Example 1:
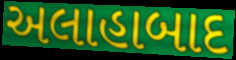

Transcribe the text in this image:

અલાહાબાદ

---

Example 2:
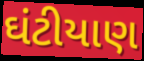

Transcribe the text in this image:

ઘંટીયાણ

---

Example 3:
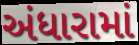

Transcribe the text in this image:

અંધારામાં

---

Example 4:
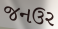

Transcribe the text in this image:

જનઉર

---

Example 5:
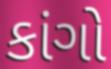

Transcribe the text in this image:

કાંગો